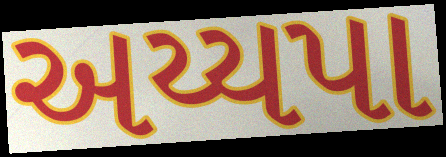
અય્યપા